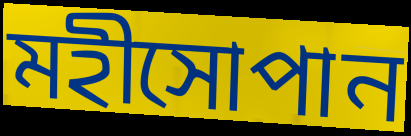
মহীসোপান